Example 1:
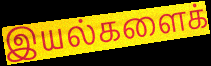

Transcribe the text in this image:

இயல்களைக்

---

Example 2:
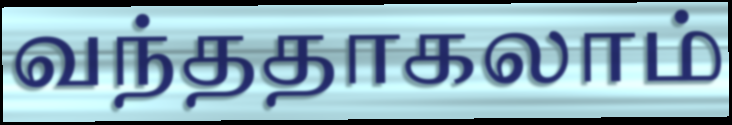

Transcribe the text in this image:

வந்ததாகலாம்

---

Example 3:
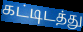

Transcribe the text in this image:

கட்டிடத்து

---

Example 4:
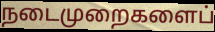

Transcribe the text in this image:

நடைமுறைகளைப்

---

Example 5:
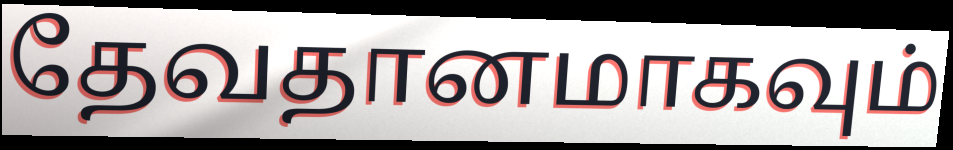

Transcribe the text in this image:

தேவதானமாகவும்